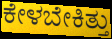
ಕೇಳಬೇಕಿತ್ತು